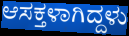
ಆಸಕ್ತಳಾಗಿದ್ದಳು